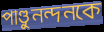
পাণ্ডুনন্দনকে